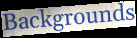
Backgrounds